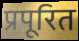
प्रपूरित